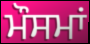
ਮੌਸਮਾਂ